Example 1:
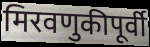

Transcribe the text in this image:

मिरवणुकीपूर्वी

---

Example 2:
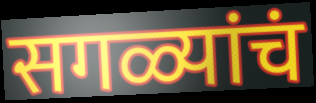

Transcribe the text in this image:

सगळ्यांचं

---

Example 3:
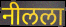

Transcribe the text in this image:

नीलला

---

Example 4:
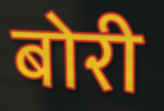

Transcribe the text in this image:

बोरी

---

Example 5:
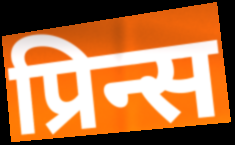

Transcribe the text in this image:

प्रिन्स